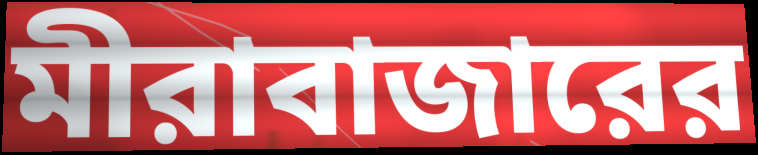
মীরাবাজারের